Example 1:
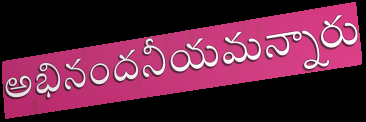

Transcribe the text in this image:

అభినందనీయమన్నారు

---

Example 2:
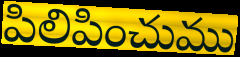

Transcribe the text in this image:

పిలిపించుము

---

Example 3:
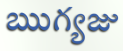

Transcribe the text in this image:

ఋగ్యజు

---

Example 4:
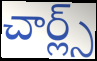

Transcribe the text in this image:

చార్ల్స్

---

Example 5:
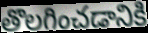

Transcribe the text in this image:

తొలగించడానికి